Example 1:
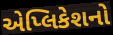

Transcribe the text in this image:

એપ્લિકેશનો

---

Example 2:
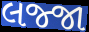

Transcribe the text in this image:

લજ્જા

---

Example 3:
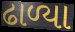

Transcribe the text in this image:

ઢાળ્યા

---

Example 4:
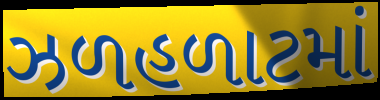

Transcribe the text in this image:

ઝળહળાટમાં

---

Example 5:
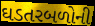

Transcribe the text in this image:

ઘડતરબળોની